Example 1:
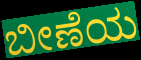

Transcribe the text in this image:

ಬೀಣೆಯ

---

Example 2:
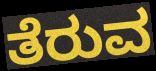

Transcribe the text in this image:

ತೆರುವ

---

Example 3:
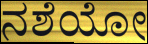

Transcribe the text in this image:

ನಶೆಯೋ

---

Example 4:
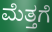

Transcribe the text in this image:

ಮೆತ್ತಗೆ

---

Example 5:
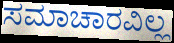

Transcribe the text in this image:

ಸಮಾಚಾರವಿಲ್ಲ